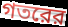
গতরের